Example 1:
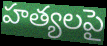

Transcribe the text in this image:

హత్యలపై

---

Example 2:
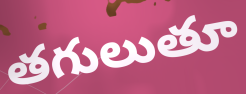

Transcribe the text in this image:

తగులుతూ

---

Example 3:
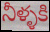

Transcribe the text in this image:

నీళ్ళకి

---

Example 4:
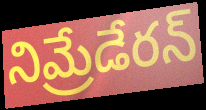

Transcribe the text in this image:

నిమ్రేడేరన్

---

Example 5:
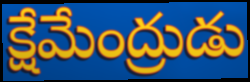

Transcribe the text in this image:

క్షేమేంద్రుడు